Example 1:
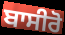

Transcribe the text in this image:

ਬਾਸੀਰੋ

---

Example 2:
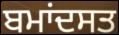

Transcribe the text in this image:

ਬਮਾਂਦਸਤ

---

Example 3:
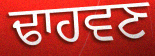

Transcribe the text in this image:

ਢਾਹਵਣ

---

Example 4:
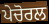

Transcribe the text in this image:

ਪੇਚੋਰਲ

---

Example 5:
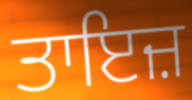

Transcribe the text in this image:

ਤਾਇਜ਼